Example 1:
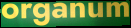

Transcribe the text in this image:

organum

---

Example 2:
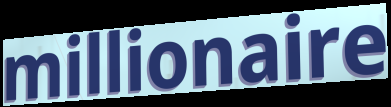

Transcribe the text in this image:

millionaire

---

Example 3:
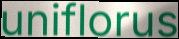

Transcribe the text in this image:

uniflorus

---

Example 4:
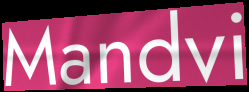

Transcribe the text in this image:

Mandvi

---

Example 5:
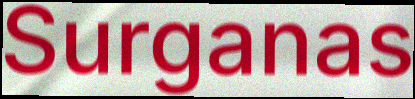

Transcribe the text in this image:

Surganas